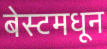
बेस्टमधून